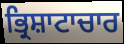
ਭ੍ਰਿਸ਼ਾਟਾਚਾਰ